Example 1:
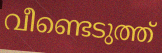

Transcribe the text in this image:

വീണ്ടെടുത്ത്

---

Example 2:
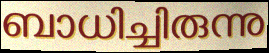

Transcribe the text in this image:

ബാധിച്ചിരുന്നു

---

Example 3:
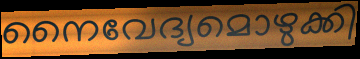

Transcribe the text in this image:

നൈവേദ്യമൊഴുക്കി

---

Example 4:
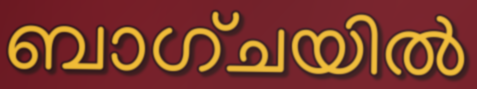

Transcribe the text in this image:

ബാഗ്ചയിൽ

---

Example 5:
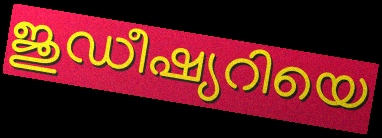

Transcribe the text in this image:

ജുഡീഷ്യറിയെ